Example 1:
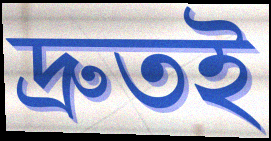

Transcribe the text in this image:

দ্রুতই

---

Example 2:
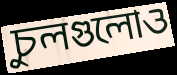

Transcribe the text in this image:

চুলগুলোও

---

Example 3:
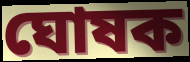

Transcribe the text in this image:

ঘোষক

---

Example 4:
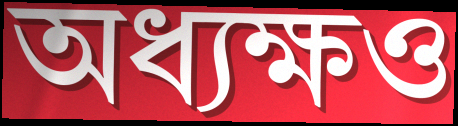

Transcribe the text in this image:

অধ্যক্ষও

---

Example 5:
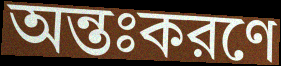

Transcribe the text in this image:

অন্তঃকরণে